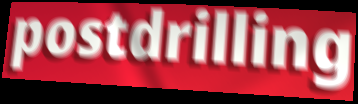
postdrilling